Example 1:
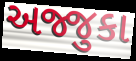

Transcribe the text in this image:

અજ્જુકા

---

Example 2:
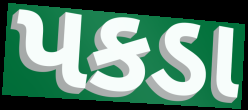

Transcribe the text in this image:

પકડા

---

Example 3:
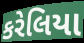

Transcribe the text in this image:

કરેલિયા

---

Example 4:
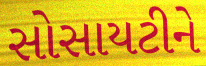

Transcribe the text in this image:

સોસાયટીને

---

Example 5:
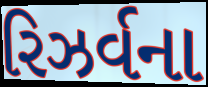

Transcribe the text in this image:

રિઝર્વના